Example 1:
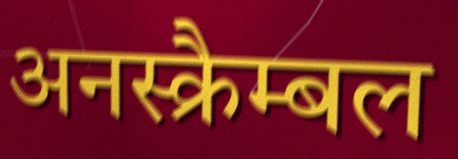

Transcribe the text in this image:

अनस्क्रैम्बल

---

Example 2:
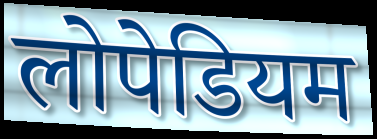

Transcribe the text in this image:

लोपेडियम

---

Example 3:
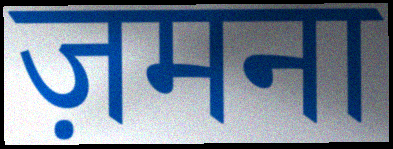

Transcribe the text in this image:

ज़मना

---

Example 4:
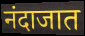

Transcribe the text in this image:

नंदाजात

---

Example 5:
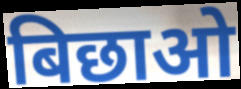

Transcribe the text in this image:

बिछाओ